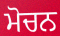
ਮੋਚਨ